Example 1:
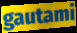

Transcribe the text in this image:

gautami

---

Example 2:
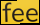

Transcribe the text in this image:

fee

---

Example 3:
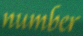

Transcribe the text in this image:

number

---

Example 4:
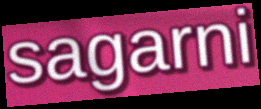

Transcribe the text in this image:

sagarni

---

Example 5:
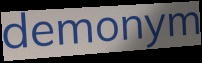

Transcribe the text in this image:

demonym